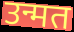
उन्मत